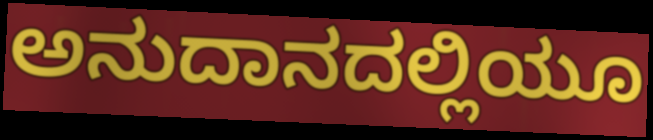
ಅನುದಾನದಲ್ಲಿಯೂ